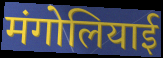
मंगोलियाई